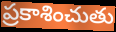
ప్రకాశించుతు